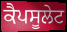
ਕੈਪਸੂਲੇਟ